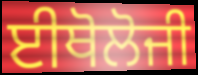
ਈਥੋਲੋਜੀ